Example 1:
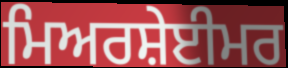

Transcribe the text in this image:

ਮਿਅਰਸ਼ੇਈਮਰ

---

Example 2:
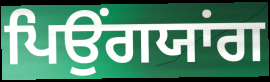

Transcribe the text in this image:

ਪਿਉਂਗਯਾਂਗ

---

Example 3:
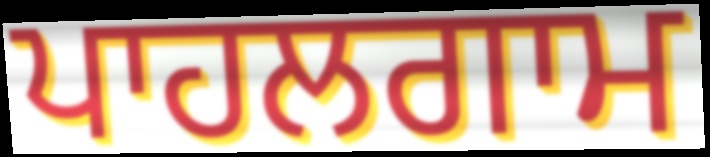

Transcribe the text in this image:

ਪਾਹਲਗਾਮ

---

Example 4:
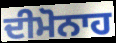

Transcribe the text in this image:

ਦੀਮੋਨਾਹ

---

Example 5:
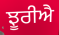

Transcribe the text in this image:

ਝੂਰੀਐ